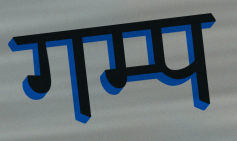
गम्प